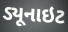
ડ્યૂનાઇટ